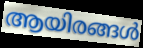
ആയിരങ്ങൾ